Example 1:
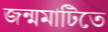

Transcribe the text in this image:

জন্মমাটিতে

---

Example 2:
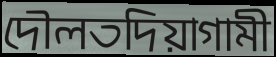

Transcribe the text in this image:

দৌলতদিয়াগামী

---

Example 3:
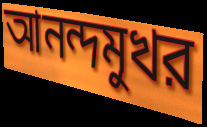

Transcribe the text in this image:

আনন্দমুখর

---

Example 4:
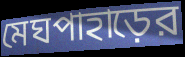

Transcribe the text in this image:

মেঘপাহাড়ের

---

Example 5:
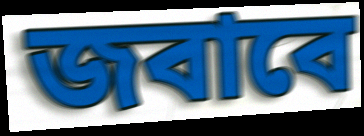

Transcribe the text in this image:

জবাবে